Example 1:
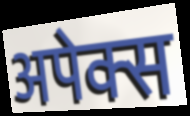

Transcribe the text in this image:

अपेक्स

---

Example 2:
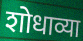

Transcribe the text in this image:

शोधाव्या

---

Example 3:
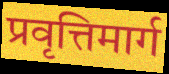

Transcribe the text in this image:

प्रवृत्तिमार्ग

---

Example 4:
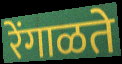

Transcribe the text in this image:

रेंगाळते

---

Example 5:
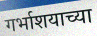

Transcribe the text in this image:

गर्भाशयाच्या